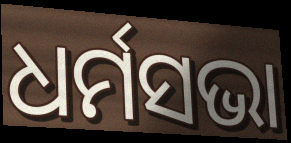
ଧର୍ମସଭା